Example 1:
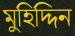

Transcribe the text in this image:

মুহিদ্দিন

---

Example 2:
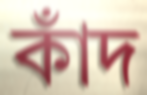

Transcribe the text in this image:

কাঁদ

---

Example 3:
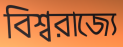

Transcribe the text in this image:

বিশ্বরাজ্যে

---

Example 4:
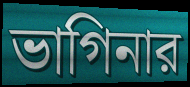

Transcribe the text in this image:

ভাগিনার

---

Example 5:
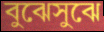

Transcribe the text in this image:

বুঝেসুঝে